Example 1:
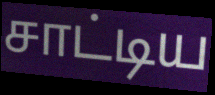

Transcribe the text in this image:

சாட்டிய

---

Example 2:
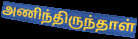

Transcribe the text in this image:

அணிந்திருந்தாள்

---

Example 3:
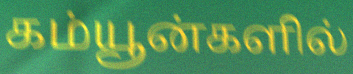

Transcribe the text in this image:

கம்யூன்களில்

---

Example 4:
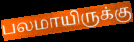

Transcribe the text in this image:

பலமாயிருக்கு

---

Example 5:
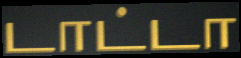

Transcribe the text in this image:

டாட்டா